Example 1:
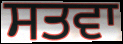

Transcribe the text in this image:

ਸਤਵਾ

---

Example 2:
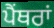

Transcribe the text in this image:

ਪੈਂਥਰਾਂ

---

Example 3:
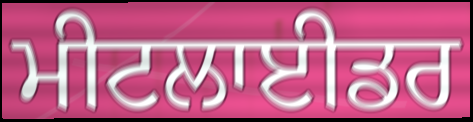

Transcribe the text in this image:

ਮੀਟਲਾਈਡਰ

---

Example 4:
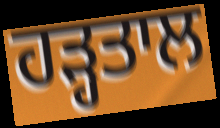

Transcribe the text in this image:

ਹੜ੍ਹਤਾਲ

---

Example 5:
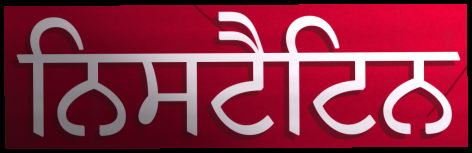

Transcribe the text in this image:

ਨਿਸਟੈਟਿਨ